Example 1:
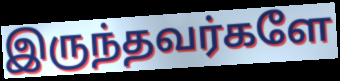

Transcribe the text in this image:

இருந்தவர்களே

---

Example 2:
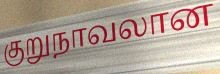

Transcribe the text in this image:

குறுநாவலான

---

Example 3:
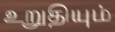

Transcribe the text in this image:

உறுதியும்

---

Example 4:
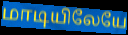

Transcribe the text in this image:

மாடியிலேயே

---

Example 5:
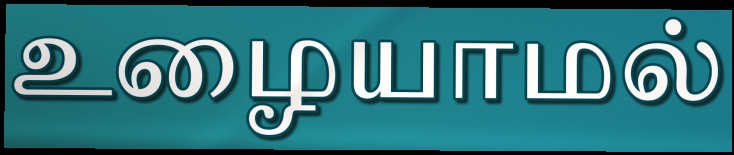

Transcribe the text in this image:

உழையாமல்